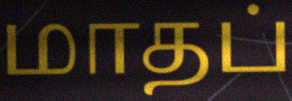
மாதப்